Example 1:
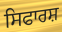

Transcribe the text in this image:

ਸਿਫਾਰਸ਼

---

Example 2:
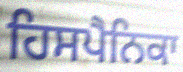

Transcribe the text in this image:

ਹਿਸਪੈਨਿਕਾ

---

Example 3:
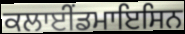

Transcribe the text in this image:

ਕਲਾਈਂਡਮਾਇਸਿਨ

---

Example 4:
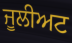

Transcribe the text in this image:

ਜੂਲੀਅਟ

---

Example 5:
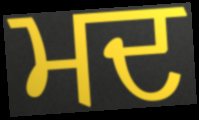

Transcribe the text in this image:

ਮਦ